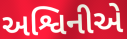
અશ્વિનીએ